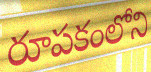
రూపకంలోని